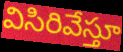
విసిరివేస్తూ